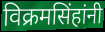
विक्रमसिंहांनी